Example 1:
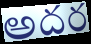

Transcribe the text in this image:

అదర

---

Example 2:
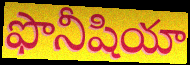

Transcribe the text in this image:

ఫొనీషియా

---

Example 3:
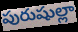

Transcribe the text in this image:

పురుషుల్లా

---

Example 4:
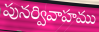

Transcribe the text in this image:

పునర్వివాహము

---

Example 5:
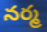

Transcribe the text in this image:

నర్మ